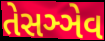
તેસઞ્ઞેવ